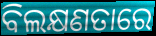
ବିଲକ୍ଷଣତାରେ